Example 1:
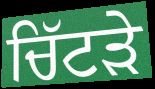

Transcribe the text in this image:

ਚਿੱਟੜੇ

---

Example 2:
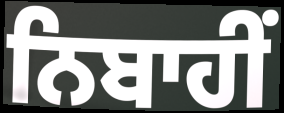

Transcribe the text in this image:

ਨਿਬਾਹੀਂ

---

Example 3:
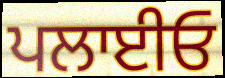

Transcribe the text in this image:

ਪਲਾਈਓ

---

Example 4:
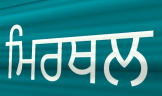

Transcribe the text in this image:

ਮਿਰਥਲ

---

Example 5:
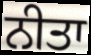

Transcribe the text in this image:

ਨੀਤਾ